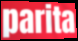
parita